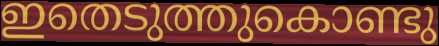
ഇതെടുത്തുകൊണ്ടു